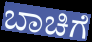
ಬಾಚಿಗೆ